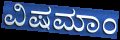
ವಿಷಮಾಂ